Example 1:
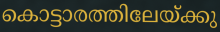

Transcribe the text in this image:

കൊട്ടാരത്തിലേയ്ക്കു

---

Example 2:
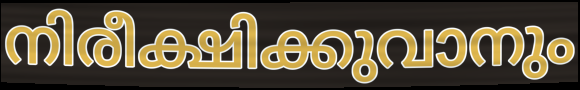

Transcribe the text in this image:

നിരീക്ഷിക്കുവാനും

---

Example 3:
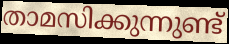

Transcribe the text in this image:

താമസിക്കുന്നുണ്ട്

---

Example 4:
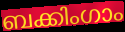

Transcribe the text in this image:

ബക്കിംഗാം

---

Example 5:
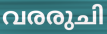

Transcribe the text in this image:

വരരുചി